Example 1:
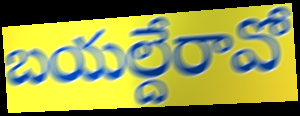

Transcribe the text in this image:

బయల్దేరావో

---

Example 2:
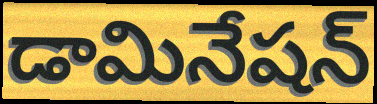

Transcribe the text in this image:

డామినేషన్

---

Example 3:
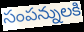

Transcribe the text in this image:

సంపన్నులకి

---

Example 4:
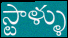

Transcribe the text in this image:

స్టాళ్ళు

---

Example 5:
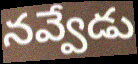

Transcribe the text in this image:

నవ్వేడు